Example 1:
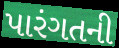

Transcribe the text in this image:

પારંગતની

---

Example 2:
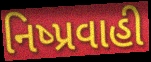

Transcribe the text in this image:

નિષ્પ્રવાહી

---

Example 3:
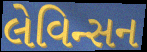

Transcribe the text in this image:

લેવિન્સન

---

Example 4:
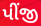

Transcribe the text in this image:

પીંજી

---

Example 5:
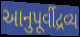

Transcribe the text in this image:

આનુપૂર્વીદ્રવ્ય